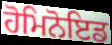
ਹੋਮਿਨੋਇਡ